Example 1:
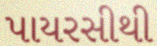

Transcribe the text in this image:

પાયરસીથી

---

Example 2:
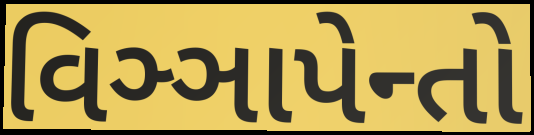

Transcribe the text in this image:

વિઞ્ઞાપેન્તો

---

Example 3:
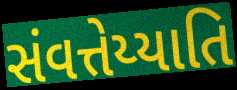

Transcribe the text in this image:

સંવત્તેય્યાતિ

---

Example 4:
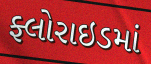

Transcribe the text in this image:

ફ્લોરાઇડમાં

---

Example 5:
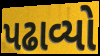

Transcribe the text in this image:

પઢાવ્યો